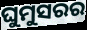
ଘୁମୁସରର